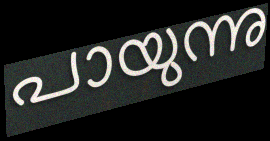
പായുന്നു